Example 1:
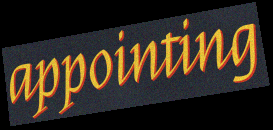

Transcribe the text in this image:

appointing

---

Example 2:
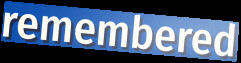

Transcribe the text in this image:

remembered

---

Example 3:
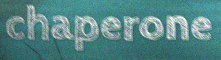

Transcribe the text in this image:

chaperone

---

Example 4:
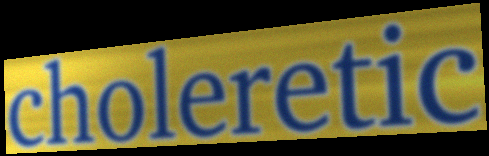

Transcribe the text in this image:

choleretic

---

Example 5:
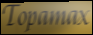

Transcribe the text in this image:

Topamax